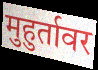
मुहुर्तावर